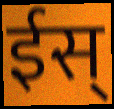
ईस्